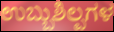
ಉಬ್ಬುಶಿಲ್ಪಗಳ